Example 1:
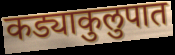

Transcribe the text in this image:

कड्याकुलुपात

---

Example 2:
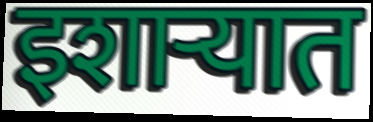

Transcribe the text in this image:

इशाऱ्यात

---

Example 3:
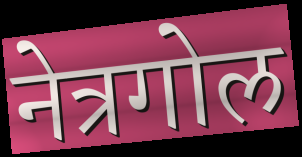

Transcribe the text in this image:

नेत्रगोल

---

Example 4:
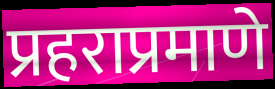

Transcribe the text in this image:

प्रहराप्रमाणे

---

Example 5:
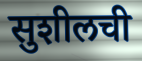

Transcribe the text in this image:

सुशीलची